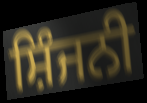
ਸ਼ਿੰਜਨੀ